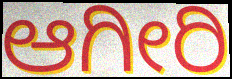
ಆಗೀರಿ